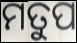
ମତୁପ